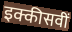
इक्कीसवीं